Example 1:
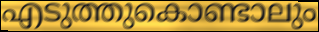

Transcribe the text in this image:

എടുത്തുകൊണ്ടാലും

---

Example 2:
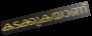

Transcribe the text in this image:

കടക്കുകയാണ്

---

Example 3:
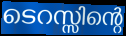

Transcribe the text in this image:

ടെറസ്സിന്റെ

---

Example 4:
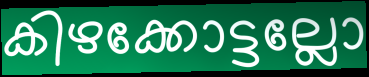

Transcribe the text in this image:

കിഴക്കോട്ടല്ലോ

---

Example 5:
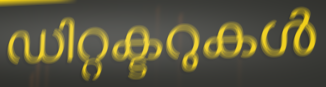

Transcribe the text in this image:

ഡിറ്റക്ടറുകൾ